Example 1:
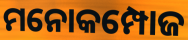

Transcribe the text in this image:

ମନୋକମ୍ପୋଜ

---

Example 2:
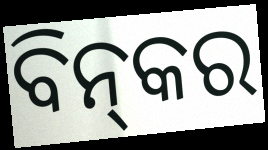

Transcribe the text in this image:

ବିନ୍‌କର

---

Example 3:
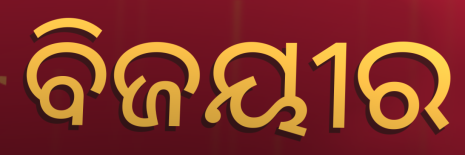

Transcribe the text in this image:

ବିଜୟୀର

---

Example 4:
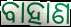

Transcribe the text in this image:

ବାହାଣ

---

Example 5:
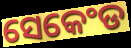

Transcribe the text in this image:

ସେକେଂଡ